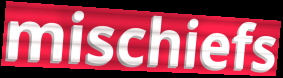
mischiefs